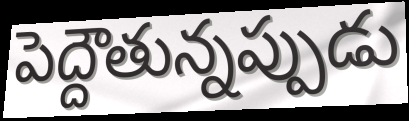
పెద్దౌతున్నప్పుడు